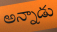
అన్నాడు